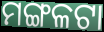
ମଙ୍ଗଳଟା